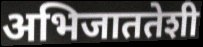
अभिजाततेशी